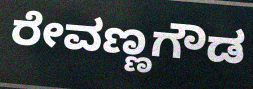
ರೇವಣ್ಣಗೌಡ